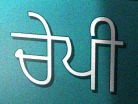
ਚੇਪੀ